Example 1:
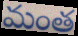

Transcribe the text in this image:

మంత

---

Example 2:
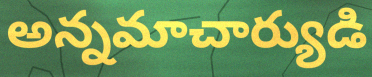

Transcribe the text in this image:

అన్నమాచార్యుడి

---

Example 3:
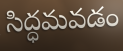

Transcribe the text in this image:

సిద్ధమవడం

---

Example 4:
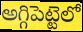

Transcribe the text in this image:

అగ్గిపెట్టెలో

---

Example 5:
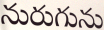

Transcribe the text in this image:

నురుగును